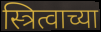
स्त्रित्वाच्या